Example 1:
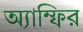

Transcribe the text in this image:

অ্যাম্ফির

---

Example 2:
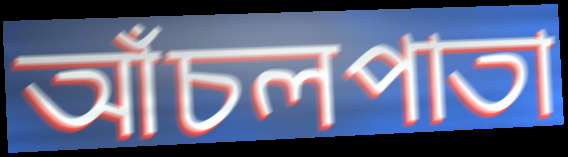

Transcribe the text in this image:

আঁচলপাতা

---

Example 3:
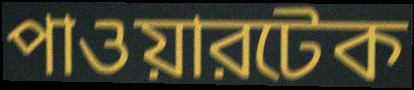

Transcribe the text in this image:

পাওয়ারটেক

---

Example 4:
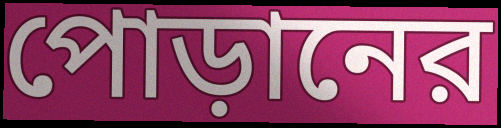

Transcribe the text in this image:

পোড়ানের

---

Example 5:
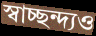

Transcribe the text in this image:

স্বাচ্ছন্দ্যও